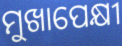
ମୁଖାପେକ୍ଷୀ